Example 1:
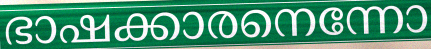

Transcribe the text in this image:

ഭാഷക്കാരനെന്നോ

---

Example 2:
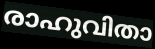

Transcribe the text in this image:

രാഹുവിതാ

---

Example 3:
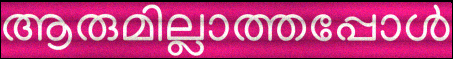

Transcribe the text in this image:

ആരുമില്ലാത്തപ്പോൾ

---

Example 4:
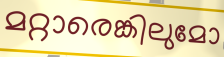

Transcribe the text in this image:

മറ്റാരെങ്കിലുമോ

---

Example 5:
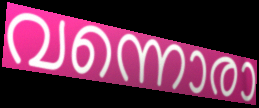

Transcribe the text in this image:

വന്നൊരാ